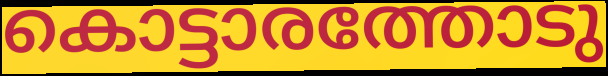
കൊട്ടാരത്തോടു